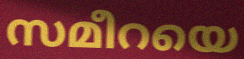
സമീറയെ